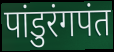
पांडुरंगपंत